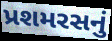
પ્રશમરસનું